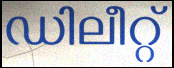
ഡിലീറ്റ്